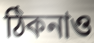
ঠিকনাও